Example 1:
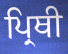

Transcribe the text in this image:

ਪ੍ਰਿਥੀ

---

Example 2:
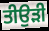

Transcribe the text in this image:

ਤੀਉੜੀ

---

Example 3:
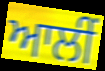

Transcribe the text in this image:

ਆਲੀਂ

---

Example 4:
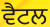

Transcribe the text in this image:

ਵੈਟਲ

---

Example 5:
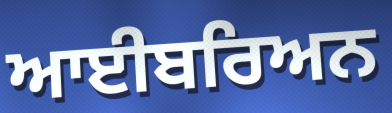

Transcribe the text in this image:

ਆਈਬਰਿਅਨ